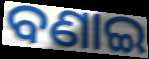
ବଣାଇ